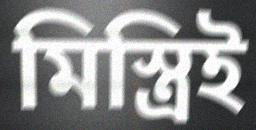
মিস্ত্রিই